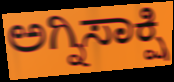
ಅಗ್ನಿಸಾಕ್ಷಿ